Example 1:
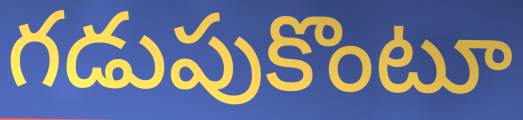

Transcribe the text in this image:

గడుపుకొంటూ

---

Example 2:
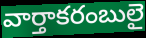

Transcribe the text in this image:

వార్తాకరంబులై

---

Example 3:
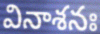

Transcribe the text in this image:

వినాశనః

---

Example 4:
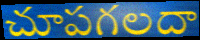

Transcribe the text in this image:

చూపగలదా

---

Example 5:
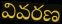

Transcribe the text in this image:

వివరణ